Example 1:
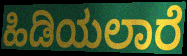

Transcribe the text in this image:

ಹಿಡಿಯಲಾರೆ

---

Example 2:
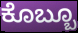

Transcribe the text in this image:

ಕೊಬ್ಬೂ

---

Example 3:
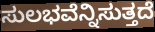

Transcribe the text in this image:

ಸುಲಭವೆನ್ನಿಸುತ್ತದೆ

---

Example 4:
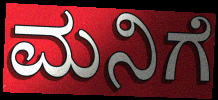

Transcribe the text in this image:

ಮನಿಗೆ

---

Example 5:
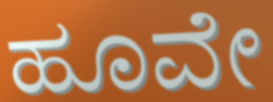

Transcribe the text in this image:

ಹೂವೇ